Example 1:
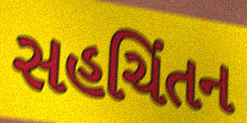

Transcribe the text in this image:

સહચિંતન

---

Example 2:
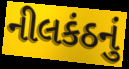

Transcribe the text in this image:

નીલકંઠનું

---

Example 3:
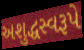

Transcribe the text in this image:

અશુદ્ધસ્વરૂપે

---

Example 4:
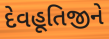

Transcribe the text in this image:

દેવહૂતિજીને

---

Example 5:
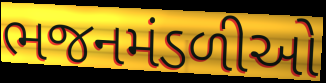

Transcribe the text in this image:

ભજનમંડળીઓ